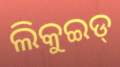
ଲିକୁଇଡ୍